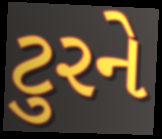
ટુરને